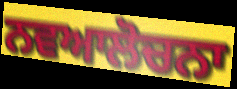
ਨਵਆਲੋਚਨਾ